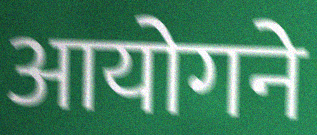
आयोगने